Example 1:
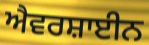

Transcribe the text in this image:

ਐਵਰਸ਼ਾਈਨ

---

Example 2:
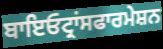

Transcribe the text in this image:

ਬਾਇਓਟ੍ਰਾਂਸਫਾਰਮੇਸ਼ਨ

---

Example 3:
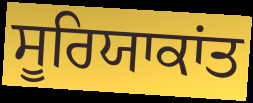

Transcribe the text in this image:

ਸੂਰਿਯਾਕਾਂਤ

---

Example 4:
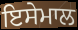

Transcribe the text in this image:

ਇਸੇਮਾਲ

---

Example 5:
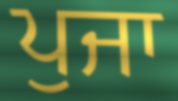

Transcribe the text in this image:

ਪੁਜਾ